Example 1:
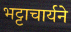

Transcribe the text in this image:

भट्टाचार्यने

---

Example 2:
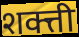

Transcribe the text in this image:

शक्त्ती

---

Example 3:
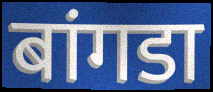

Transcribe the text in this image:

बांगडा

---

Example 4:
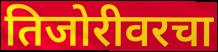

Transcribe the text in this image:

तिजोरीवरचा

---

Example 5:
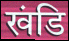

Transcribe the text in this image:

खंडि